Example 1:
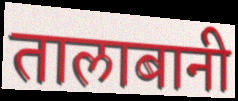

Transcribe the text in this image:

तालाबानी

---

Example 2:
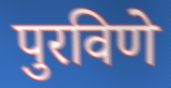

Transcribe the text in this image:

पुरविणे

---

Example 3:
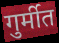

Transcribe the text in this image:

गुर्मीत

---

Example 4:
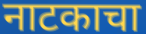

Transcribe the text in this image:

नाटकाचा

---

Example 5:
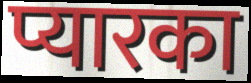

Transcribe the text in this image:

प्यारका